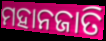
ମହାନଜାତି